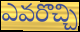
ఎవరొచ్చి